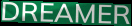
DREAMER